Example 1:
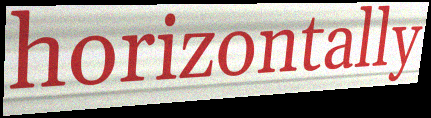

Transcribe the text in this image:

horizontally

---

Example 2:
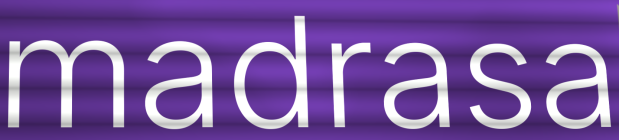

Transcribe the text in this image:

madrasa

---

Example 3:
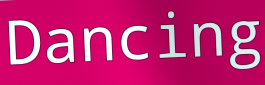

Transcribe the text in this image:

Dancing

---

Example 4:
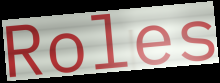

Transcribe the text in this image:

Roles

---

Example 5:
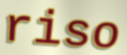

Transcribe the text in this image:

riso